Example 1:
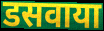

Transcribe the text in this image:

डसवाया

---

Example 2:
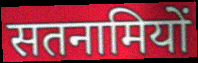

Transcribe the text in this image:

सतनामियों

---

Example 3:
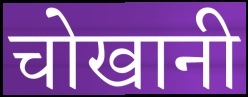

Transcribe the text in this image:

चोखानी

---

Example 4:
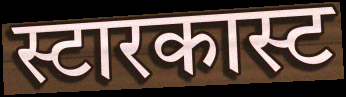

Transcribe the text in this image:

स्टारकास्ट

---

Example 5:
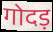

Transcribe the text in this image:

गोदड़